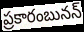
ప్రకారంబునన్